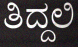
ತಿದ್ದಲಿ